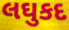
લઘુકદ